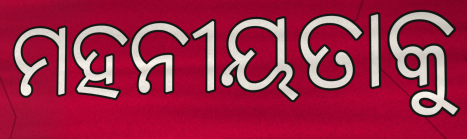
ମହନୀୟତାକୁ